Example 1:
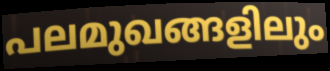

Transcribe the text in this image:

പലമുഖങ്ങളിലും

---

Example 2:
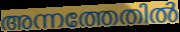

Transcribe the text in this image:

അന്നത്തേതിൽ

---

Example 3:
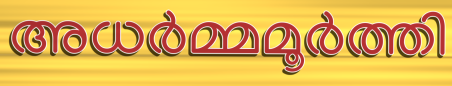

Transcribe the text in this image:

അധർമ്മമൂർത്തി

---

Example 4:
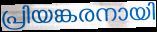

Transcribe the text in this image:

പ്രിയങ്കരനായി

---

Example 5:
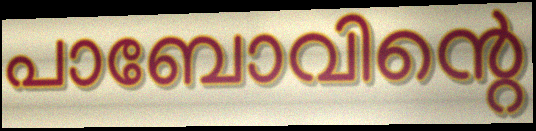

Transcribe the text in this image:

പാബോവിന്റെ